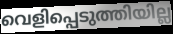
വെളിപ്പെടുത്തിയില്ല